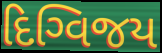
દિગ્વિજય